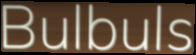
Bulbuls